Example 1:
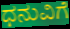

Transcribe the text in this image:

ಧನುವಿಗೆ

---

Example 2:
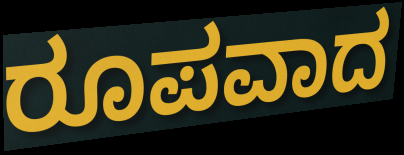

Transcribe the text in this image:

ರೂಪವಾದ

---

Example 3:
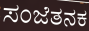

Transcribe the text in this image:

ಸಂಜೆತನಕ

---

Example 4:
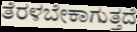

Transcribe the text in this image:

ತೆರಳಬೇಕಾಗುತ್ತದೆ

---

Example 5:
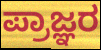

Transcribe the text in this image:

ಪ್ರಾಜ್ಞರ